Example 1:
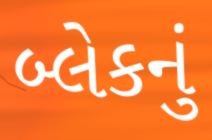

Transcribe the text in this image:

બ્લેકનું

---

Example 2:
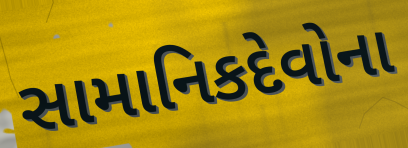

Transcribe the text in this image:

સામાનિકદેવોના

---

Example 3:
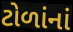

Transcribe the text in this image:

ટોળાંનાં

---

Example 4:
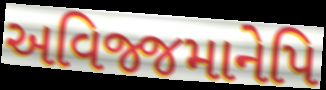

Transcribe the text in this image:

અવિજ્જમાનેપિ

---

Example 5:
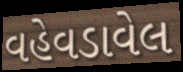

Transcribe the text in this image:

વહેવડાવેલ